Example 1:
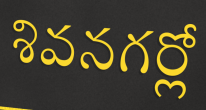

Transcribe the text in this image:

శివనగర్లో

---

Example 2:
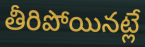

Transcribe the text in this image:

తీరిపోయినట్లే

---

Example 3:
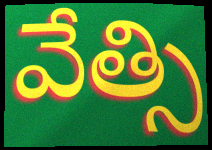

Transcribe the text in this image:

వేత్సి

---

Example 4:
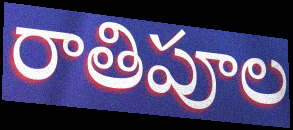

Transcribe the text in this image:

రాతిపూల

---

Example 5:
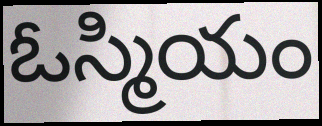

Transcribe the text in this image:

ఓస్మియం